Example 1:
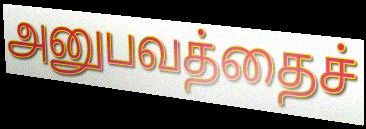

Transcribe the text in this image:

அனுபவத்தைச்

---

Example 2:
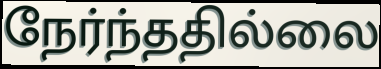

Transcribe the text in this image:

நேர்ந்ததில்லை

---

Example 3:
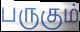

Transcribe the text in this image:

பருகும்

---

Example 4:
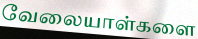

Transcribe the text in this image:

வேலையாள்களை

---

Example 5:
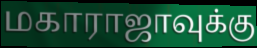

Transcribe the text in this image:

மகாராஜாவுக்கு